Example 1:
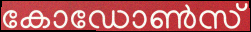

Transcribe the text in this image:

കോഡോൺസ്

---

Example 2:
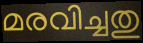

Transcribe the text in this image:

മരവിച്ചതു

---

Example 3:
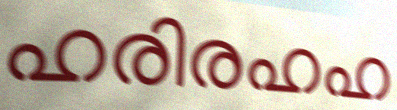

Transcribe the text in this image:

ഹരിരഹഹ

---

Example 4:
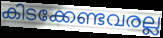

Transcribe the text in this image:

കിടക്കേണ്ടവരല്ല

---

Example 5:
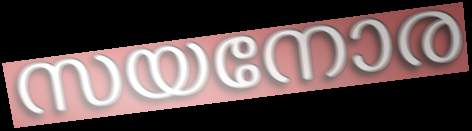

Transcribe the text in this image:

സയനോര